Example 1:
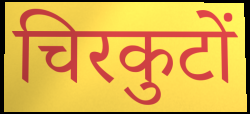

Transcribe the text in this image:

चिरकुटों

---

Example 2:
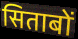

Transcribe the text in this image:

सिताबों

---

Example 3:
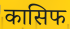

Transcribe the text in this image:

कासिफ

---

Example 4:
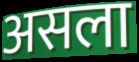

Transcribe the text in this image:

असला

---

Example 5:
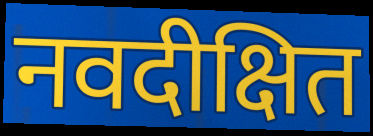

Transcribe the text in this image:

नवदीक्षित